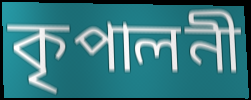
কৃপালনী